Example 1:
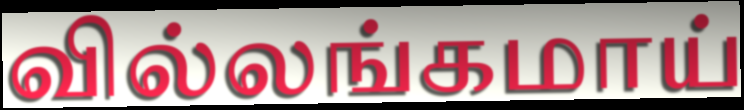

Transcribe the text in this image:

வில்லங்கமாய்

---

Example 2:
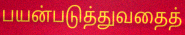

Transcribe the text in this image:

பயன்படுத்துவதைத்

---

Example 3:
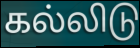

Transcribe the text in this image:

கல்லிடு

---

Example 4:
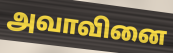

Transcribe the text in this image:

அவாவினை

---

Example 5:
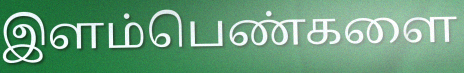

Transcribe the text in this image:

இளம்பெண்களை